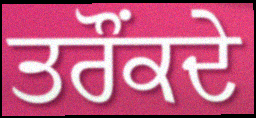
ਤਰੌਂਕਦੇ